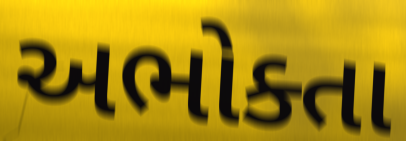
અભોક્તા